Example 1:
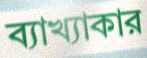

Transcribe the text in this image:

ব্যাখ্যাকার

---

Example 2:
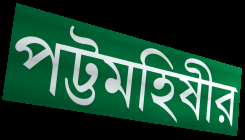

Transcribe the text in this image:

পট্টমহিষীর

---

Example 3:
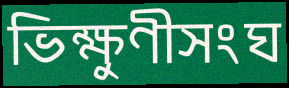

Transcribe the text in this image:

ভিক্ষুণীসংঘ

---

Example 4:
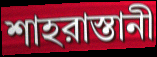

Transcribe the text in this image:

শাহরাস্তানী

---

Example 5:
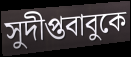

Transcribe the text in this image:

সুদীপ্তবাবুকে